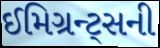
ઈમિગ્રન્ટ્સની